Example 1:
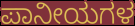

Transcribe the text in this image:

ಪಾನೀಯಗಳ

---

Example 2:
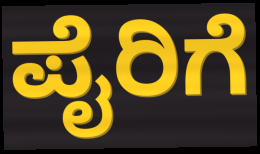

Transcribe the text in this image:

ಪೈರಿಗೆ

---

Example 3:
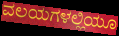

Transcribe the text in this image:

ವಲಯಗಳಲ್ಲಿಯೂ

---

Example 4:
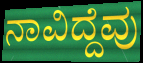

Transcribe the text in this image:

ನಾವಿದ್ದೆವು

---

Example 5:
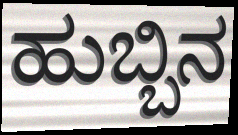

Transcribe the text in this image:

ಹುಬ್ಬಿನ